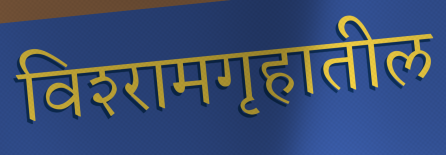
विश्रामगृहातील